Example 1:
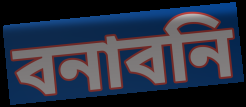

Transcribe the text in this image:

বনাবনি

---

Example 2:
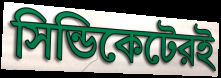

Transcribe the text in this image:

সিন্ডিকেটেরই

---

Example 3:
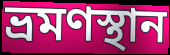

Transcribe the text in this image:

ভ্রমণস্থান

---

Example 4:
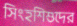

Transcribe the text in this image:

সিংহশিশুদের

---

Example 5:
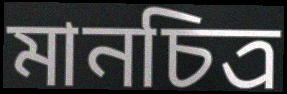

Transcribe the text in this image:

মানচিত্র